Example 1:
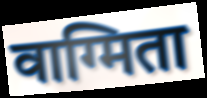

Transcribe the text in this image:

वाग्मिता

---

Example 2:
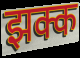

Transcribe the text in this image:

झक्क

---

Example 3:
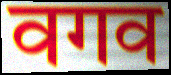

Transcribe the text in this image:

वगव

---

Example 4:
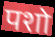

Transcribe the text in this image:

पशो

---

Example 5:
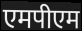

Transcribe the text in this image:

एमपीएम